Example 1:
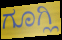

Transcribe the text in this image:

ಗೂಗ್ಲಿ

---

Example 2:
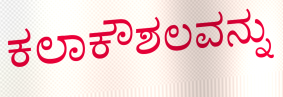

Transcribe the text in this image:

ಕಲಾಕೌಶಲವನ್ನು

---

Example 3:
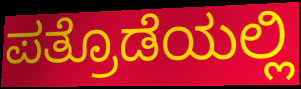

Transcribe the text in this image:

ಪತ್ರೊಡೆಯಲ್ಲಿ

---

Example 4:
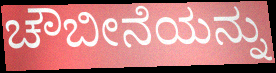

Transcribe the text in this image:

ಚೌಬೀನೆಯನ್ನು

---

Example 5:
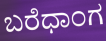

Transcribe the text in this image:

ಬರೆಧಾಂಗ